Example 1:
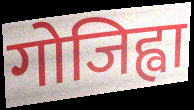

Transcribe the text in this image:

गोजिह्वा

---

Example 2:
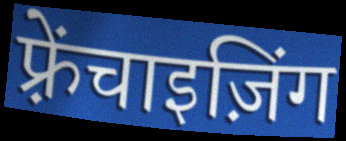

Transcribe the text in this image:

फ़्रेंचाइज़िंग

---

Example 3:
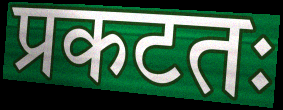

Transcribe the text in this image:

प्रकटतः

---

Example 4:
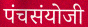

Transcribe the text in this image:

पंचसंयोजी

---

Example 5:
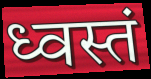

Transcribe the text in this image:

ध्वस्तं